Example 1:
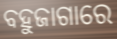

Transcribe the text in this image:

ବହୁଜାଗାରେ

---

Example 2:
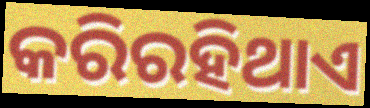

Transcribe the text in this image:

କରିରହିଥାଏ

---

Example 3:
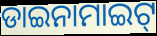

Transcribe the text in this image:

ଡାଇନାମାଇଟ୍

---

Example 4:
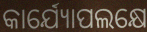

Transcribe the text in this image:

କାର୍ଯ୍ୟୋପଲକ୍ଷେ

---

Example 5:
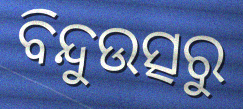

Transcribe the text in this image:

ବିନ୍ଦୁଉତ୍ସରୁ